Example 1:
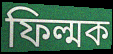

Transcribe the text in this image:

ফিল্মক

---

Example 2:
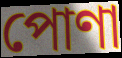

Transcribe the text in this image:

পোণা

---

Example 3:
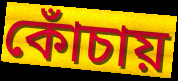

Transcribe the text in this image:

কোঁচায়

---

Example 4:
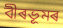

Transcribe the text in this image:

বীৰভূমৰ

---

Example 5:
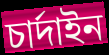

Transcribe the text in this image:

চাৰ্দাইন